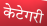
केटेगरी